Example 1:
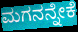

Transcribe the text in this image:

ಮಗನನ್ನೇಕೆ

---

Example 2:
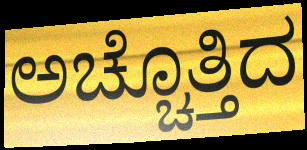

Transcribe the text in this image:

ಅಚ್ಚೊತ್ತಿದ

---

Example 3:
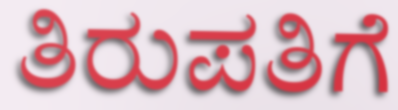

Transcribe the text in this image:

ತಿರುಪತಿಗೆ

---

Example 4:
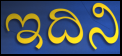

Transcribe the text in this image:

ಇದಿನಿ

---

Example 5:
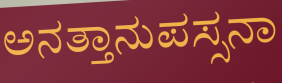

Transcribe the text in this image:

ಅನತ್ತಾನುಪಸ್ಸನಾ